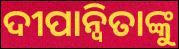
ଦୀପାନ୍ୱିତାଙ୍କୁ